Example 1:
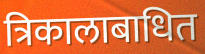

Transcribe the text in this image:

त्रिकालाबाधित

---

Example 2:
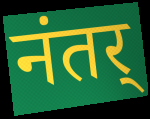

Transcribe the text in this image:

नंतर्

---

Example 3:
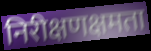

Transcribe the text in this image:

निरीक्षणक्षमता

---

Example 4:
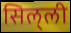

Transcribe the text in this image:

सिल्ली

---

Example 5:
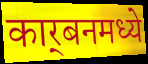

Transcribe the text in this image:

कार्बनमध्ये